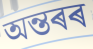
অন্তৰৰ